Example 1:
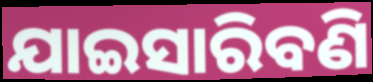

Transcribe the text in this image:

ଯାଇସାରିବଣି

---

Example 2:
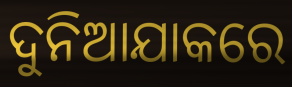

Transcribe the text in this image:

ଦୁନିଆଯାକରେ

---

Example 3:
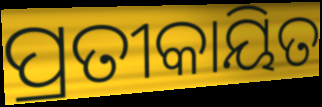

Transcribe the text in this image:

ପ୍ରତୀକାୟିତ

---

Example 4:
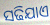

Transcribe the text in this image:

ସଢିଯାଏ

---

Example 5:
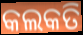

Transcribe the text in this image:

କଲକତି